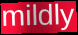
mildly